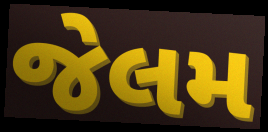
જેલમ